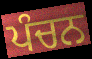
ਪੰਚਨ